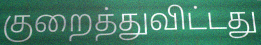
குறைத்துவிட்டது